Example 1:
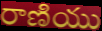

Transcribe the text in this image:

రాణియు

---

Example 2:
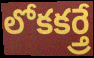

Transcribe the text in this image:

లోకకర్త్రే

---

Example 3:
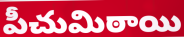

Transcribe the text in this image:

పీచుమిఠాయి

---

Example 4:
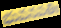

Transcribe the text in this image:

భువనపతిః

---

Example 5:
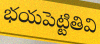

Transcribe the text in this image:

భయపెట్టితివి